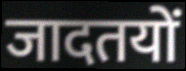
जादतयों